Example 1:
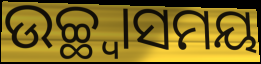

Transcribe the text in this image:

ଉଚ୍ଛ୍ଵାସମୟ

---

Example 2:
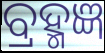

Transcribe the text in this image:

ବ୍ରହ୍ମଜ୍ଞ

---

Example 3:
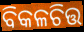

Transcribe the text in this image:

ବିକଳଚିତ୍ତ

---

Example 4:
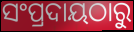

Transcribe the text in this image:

ସଂପ୍ରଦାୟଠାରୁ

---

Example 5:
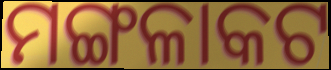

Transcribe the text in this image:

ମଙ୍ଗଳାକଟ